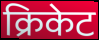
क्रिकेट